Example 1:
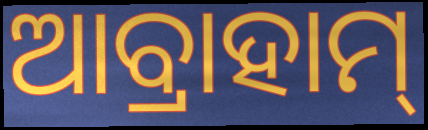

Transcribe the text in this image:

ଆବ୍ରାହାମ୍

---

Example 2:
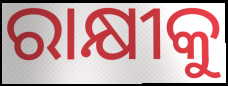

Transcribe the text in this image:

ରାକ୍ଷୀକୁ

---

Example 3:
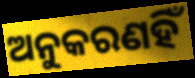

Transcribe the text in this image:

ଅନୁକରଣହିଁ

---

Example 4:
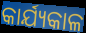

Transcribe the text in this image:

କାର୍ଯ୍ୟକାଳ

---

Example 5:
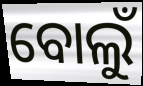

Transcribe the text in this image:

ବୋଲୁଁ